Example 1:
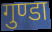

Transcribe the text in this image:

गुण्डा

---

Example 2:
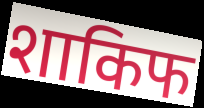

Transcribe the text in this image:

शाकिफ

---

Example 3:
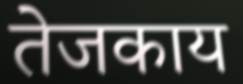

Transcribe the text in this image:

तेजकाय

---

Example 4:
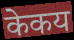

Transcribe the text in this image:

केकय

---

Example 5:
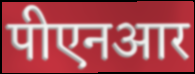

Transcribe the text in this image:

पीएनआर